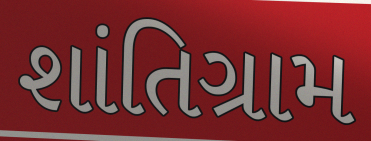
શાંતિગ્રામ